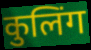
कुलिंग